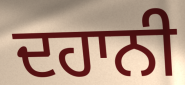
ਦਹਾਨੀ